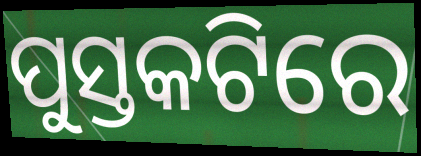
ପୁସ୍ତକଟିରେ